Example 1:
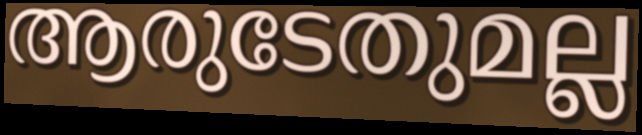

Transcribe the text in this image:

ആരുടേതുമല്ല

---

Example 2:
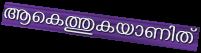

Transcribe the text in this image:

ആകെത്തുകയാണിത്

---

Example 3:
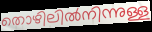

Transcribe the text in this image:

തൊഴിലിൽനിന്നുള്ള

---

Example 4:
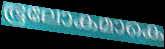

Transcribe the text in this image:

ഭൂലോകമാകെ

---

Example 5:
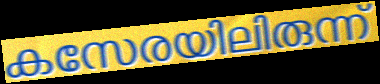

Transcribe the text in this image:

കസേരയിലിരുന്ന്